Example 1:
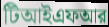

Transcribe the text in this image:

টিআইএফআর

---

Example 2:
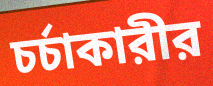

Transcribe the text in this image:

চর্চাকারীর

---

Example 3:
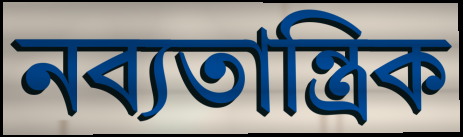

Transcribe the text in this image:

নব্যতান্ত্রিক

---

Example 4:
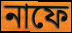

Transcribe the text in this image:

নাফে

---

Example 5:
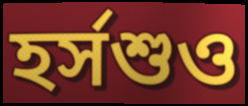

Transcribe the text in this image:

হর্সশুও